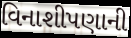
વિનાશીપણાની